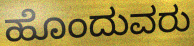
ಹೊಂದುವರು